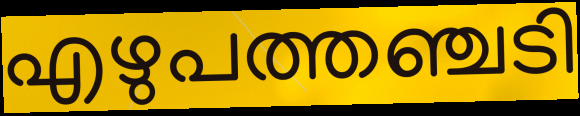
എഴുപത്തഞ്ചടി